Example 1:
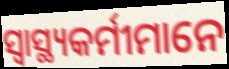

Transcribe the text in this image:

ସ୍ବାସ୍ଥ୍ୟକର୍ମୀମାନେ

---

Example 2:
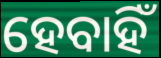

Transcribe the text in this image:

ହେବାହିଁ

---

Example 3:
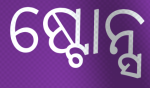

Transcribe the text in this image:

ଷ୍ଟୋନ୍ସ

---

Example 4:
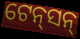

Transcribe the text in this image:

ଟେନ୍‌ସନ୍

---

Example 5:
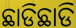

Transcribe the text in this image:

ଛାଡିଛାଡି